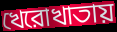
খেরোখাতায়